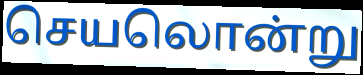
செயலொன்று